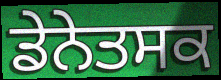
ਡੇਨੇਤਸਕ